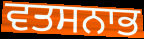
ਵਤਸਨਾਭ